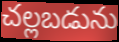
చల్లబడును